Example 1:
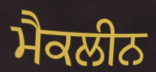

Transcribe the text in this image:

ਮੈਕਲੀਨ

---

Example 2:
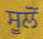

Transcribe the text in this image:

ਸੂਲੋਂ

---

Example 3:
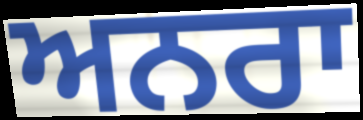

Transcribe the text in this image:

ਅਨਰਾ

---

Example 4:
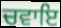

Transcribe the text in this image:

ਚਵਾਇ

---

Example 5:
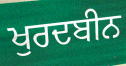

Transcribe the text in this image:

ਖੁਰਦਬੀਨ